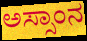
ಅಸ್ಸಾಂನ